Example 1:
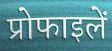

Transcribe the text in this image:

प्रोफाइलें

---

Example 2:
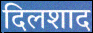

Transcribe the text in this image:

दिलशाद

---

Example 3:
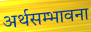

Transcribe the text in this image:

अर्थसम्भावना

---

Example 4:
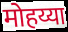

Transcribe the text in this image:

मोहय्या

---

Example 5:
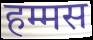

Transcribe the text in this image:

हम्मस